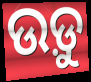
ଉଡ଼ୁ